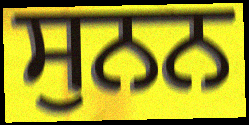
ਸੁਨਨ